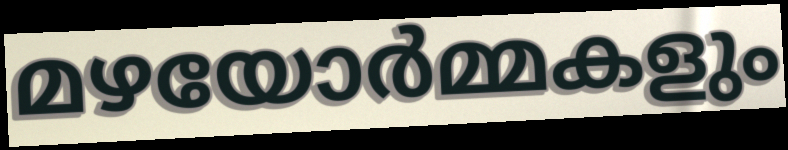
മഴയോർമ്മകളും